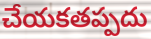
చేయకతప్పదు